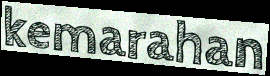
kemarahan